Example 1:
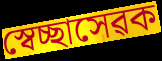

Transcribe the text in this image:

স্বেচ্ছাসেৱক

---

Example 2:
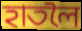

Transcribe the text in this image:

হাতলৈ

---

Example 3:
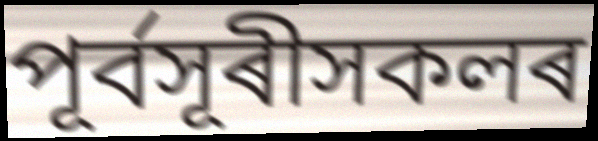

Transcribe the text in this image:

পূৰ্বসূৰীসকলৰ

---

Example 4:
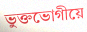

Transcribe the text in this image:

ভুক্তভোগীয়ে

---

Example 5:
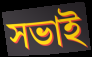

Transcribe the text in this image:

সভাই